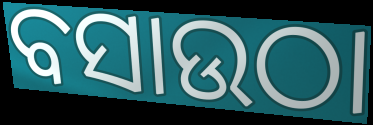
ବସାଉଠା